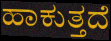
ಹಾಕುತ್ತದೆ